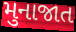
મુનાજાત